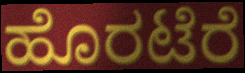
ಹೊರಟೆರೆ